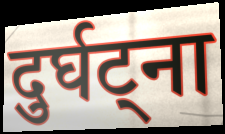
दुर्घट्ना